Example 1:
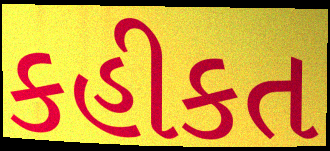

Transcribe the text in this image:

કહીકત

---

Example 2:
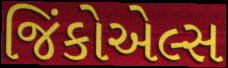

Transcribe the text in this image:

જિંકોએલ્સ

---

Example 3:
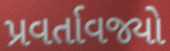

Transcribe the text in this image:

પ્રવર્તાવજ્યો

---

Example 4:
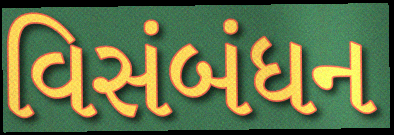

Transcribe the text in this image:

વિસંબંધન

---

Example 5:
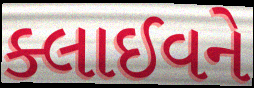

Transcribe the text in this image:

ક્લાઈવને